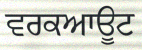
ਵਰਕਆਊਟ